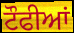
ਟੌਫੀਆਂ